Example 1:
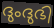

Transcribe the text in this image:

ദുംദുഭി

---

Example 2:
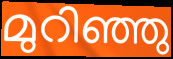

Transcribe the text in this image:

മുറിഞ്ഞു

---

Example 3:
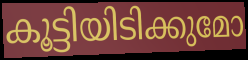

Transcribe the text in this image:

കൂട്ടിയിടിക്കുമോ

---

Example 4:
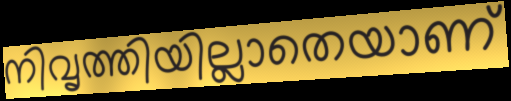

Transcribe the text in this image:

നിവൃത്തിയില്ലാതെയാണ്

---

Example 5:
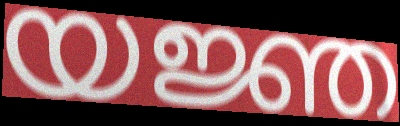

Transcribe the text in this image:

യജ്ഞ